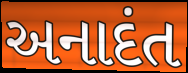
અનાદંત